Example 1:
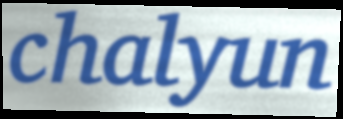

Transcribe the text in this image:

chalyun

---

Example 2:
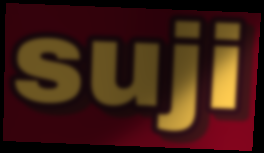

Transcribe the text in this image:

suji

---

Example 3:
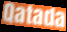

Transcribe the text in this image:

Qatada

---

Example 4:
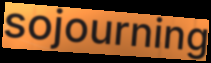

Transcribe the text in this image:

sojourning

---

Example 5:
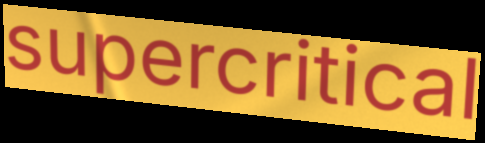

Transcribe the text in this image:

supercritical